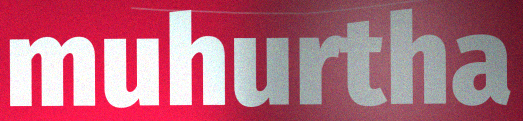
muhurtha